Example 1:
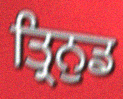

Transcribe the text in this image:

ਤ੍ਰਿਨੁਡ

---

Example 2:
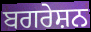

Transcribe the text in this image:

ਬਗਰੇਸ਼ਨ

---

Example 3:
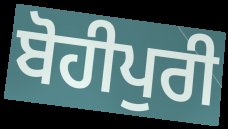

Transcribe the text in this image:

ਬੋਹੀਪੁਰੀ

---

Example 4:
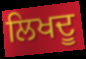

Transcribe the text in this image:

ਲਿਖਦੂ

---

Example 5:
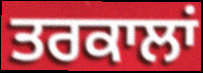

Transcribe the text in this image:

ਤਰਕਾਲਾਂ